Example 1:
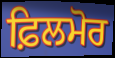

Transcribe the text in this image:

ਫ਼ਿਲਮੋਰ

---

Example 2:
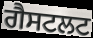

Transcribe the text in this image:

ਗੈਸਟਲਟ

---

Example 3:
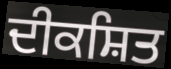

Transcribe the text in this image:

ਦੀਕਸ਼ਿਤ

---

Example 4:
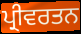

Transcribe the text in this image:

ਪ੍ਰੀਵਰਤਨ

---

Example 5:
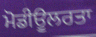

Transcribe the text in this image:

ਮੋਡੀਊਲਰਤਾ